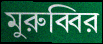
মুরুব্বির